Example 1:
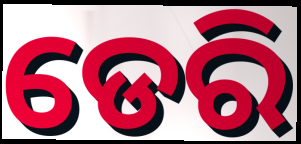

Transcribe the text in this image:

ଡେରି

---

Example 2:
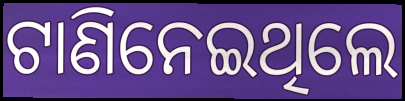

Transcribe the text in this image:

ଟାଣିନେଇଥିଲେ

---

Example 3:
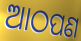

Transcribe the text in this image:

ଆଠପଣ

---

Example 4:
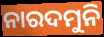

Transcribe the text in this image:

ନାରଦମୁନି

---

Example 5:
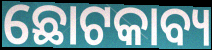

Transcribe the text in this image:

ଛୋଟକାବ୍ୟ